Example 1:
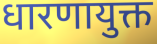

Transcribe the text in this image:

धारणायुक्त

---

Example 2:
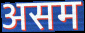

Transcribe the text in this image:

असम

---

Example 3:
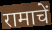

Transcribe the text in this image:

रामाचें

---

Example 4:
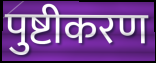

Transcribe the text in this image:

पुष्टीकरण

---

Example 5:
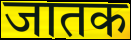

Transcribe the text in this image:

जातक